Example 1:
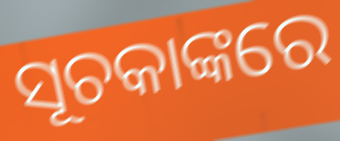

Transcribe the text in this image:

ସୂଚକାଙ୍କରେ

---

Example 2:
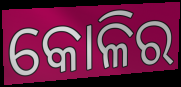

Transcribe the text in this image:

କୋଳିର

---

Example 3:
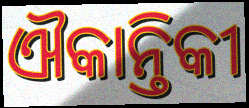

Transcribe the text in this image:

ଐକାନ୍ତିକୀ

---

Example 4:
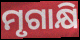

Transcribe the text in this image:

ମୃଗାକ୍ଷି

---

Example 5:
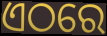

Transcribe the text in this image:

ଏଠରେ